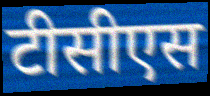
टीसीएस